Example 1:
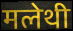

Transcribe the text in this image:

मलेथी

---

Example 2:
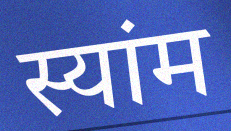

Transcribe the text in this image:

स्यांम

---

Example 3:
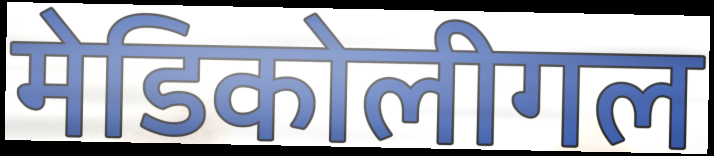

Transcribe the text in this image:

मेडिकोलीगल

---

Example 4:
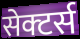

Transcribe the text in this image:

सेक्‍टर्स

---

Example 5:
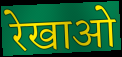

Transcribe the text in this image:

रेखाओ